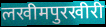
लखीमपुरखीरी